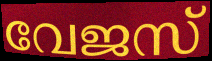
വേജസ്